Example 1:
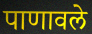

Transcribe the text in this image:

पाणावले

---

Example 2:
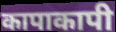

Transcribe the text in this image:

कापाकापी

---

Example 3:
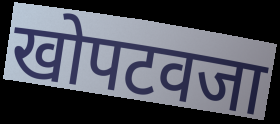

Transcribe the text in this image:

खोपटवजा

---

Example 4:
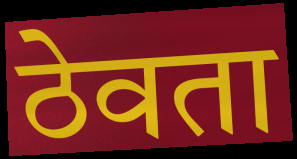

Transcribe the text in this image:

ठेवता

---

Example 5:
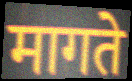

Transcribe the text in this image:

मागते